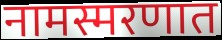
नामस्मरणात